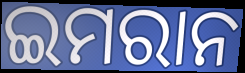
ଇମରାନ